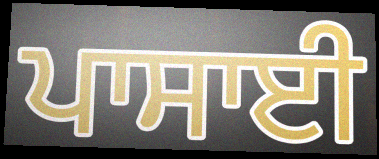
ਪਾਸਾਈ